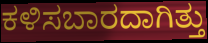
ಕಳಿಸಬಾರದಾಗಿತ್ತು